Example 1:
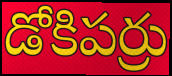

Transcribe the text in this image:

డోకిపర్రు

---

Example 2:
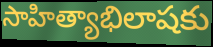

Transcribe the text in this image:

సాహిత్యాభిలాషకు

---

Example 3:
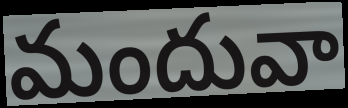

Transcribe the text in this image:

మందువా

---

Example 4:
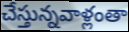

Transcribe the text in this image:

చేస్తున్నవాళ్లంతా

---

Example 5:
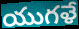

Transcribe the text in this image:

యుగళే